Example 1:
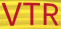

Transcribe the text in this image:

VTR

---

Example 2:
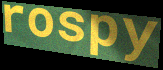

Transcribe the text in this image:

rospy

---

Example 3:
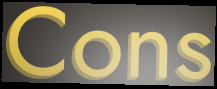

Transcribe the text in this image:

Cons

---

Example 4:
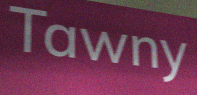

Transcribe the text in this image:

Tawny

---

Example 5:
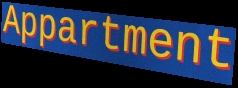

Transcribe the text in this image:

Appartment